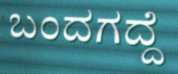
ಬಂದಗದ್ದೆ